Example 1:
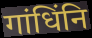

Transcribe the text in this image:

गांधिंनि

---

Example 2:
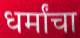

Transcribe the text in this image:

धर्मांचा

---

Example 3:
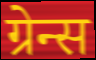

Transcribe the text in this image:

ग्रेन्स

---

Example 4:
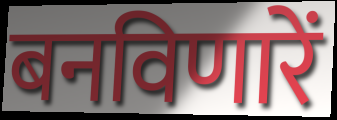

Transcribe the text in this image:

बनविणारें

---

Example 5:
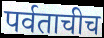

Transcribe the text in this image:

पर्वताचीच